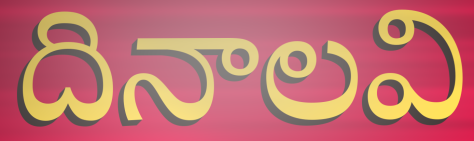
దినాలవి